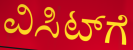
ವಿಸಿಟ್‌ಗೆ